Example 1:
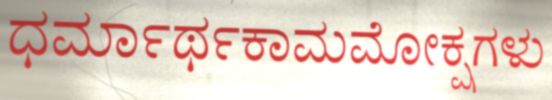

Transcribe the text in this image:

ಧರ್ಮಾರ್ಥಕಾಮಮೋಕ್ಷಗಳು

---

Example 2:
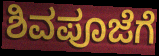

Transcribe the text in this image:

ಶಿವಪೂಜೆಗೆ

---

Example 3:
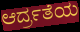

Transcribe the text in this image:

ಆರ್ದ್ರತೆಯ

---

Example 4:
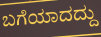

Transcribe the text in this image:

ಬಗೆಯಾದದ್ದು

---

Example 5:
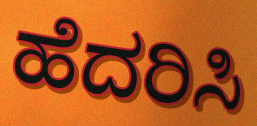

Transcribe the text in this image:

ಹೆದರಿಸಿ